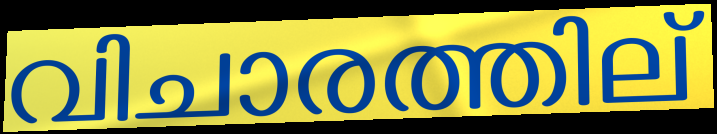
വിചാരത്തില്